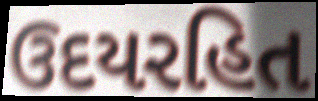
ઉદયરહિત